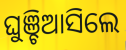
ଘୁଞ୍ଚିଆସିଲେ